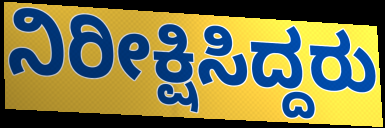
ನಿರೀಕ್ಷಿಸಿದ್ದರು